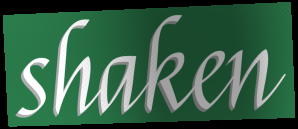
shaken